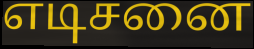
எடிசனை